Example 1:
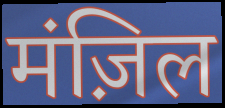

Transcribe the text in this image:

मंज़िल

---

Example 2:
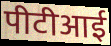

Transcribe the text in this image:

पीटीआई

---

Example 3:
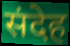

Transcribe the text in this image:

संदेह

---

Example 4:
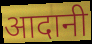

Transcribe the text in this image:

आदानी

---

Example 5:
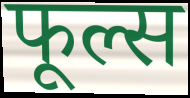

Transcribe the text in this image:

फूल्स